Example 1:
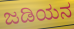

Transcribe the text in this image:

ಜಡಿಯನ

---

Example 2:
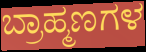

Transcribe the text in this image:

ಬ್ರಾಹ್ಮಣಗಳ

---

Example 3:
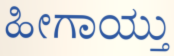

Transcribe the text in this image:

ಹೀಗಾಯ್ತು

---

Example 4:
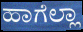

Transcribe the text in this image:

ಹಾಗೆಲ್ಲಾ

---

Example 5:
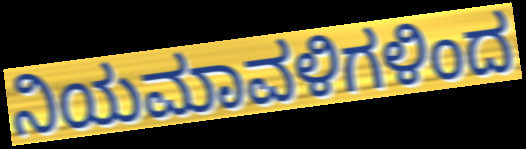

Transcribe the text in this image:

ನಿಯಮಾವಳಿಗಳಿಂದ